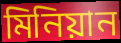
মিনিয়ান